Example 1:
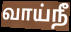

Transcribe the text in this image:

வாய்நீ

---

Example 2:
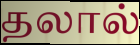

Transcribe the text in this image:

தலால்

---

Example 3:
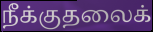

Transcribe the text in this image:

நீக்குதலைக்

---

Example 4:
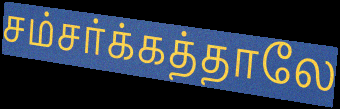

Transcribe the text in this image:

சம்சர்க்கத்தாலே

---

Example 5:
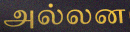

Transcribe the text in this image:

அல்லன